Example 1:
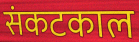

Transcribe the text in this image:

संकटकाल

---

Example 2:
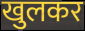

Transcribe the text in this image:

खुलकर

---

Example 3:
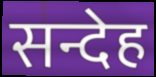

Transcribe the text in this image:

सन्देह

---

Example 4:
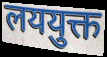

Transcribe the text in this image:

लययुक्त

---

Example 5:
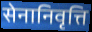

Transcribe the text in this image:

सेनानिवृत्ति